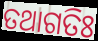
ତଥାଗତିଃ